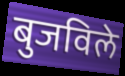
बुजविले